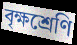
বৃক্ষশ্রেণি